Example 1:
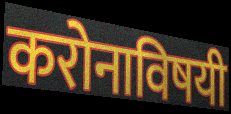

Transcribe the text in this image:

करोनाविषयी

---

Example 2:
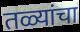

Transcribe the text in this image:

तळ्यांचा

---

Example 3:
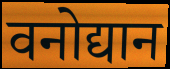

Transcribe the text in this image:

वनोद्यान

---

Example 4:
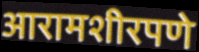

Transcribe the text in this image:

आरामशीरपणे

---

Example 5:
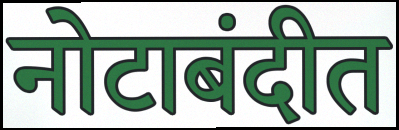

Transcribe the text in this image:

नोटाबंदीत